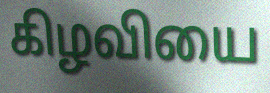
கிழவியை